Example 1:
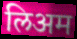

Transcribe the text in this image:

लिअम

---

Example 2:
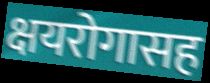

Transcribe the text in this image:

क्षयरोगासह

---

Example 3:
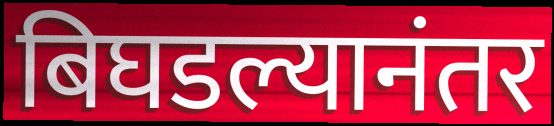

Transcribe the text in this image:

बिघडल्यानंतर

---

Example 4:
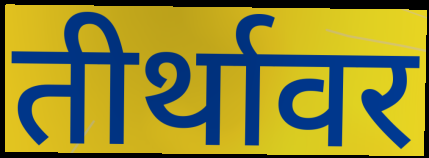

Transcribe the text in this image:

तीर्थावर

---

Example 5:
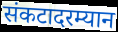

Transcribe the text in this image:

संकटादरम्यान